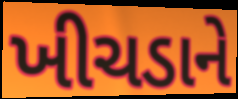
ખીચડાને